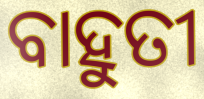
ବାହୁତୀ